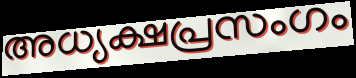
അധ്യക്ഷപ്രസംഗം